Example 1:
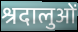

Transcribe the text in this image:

श्रदालुओं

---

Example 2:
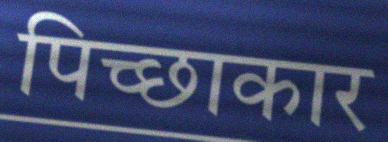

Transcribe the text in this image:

पिच्छाकार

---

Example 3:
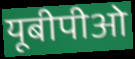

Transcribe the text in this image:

यूबीपीओ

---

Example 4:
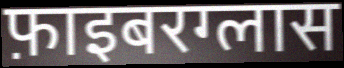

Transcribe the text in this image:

फ़ाइबरग्लास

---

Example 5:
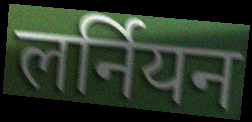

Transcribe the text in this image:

लर्नियन